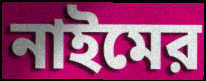
নাইমের